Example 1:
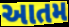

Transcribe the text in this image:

આતમ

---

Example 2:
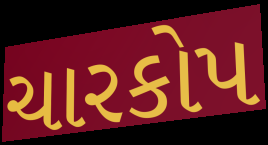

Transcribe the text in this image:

ચારકોપ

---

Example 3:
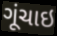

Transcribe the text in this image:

ગૂંચાઇ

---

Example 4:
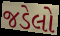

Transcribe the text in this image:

જડેલો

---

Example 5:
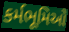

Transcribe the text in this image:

કર્મભૂમિઓ